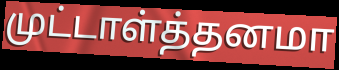
முட்டாள்த்தனமா